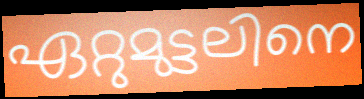
ഏറ്റുമുട്ടലിനെ